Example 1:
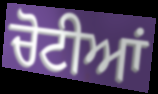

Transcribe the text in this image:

ਚੋਟੀਆਂ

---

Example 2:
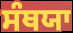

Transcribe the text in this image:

ਸੰਥਯਾ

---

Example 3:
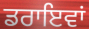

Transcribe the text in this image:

ਡਰਾਇਵਾਂ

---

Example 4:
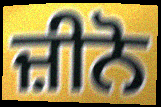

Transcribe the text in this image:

ਜ਼ੀਨੋ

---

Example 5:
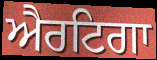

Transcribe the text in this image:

ਐਰਟਿਗਾ